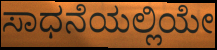
ಸಾಧನೆಯಲ್ಲಿಯೇ